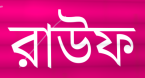
রাউফ